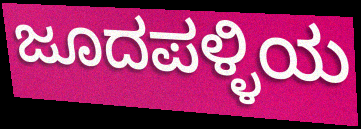
ಜೂದಪಳ್ಳಿಯ